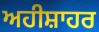
ਅਹੀਸ਼ਾਹਰ